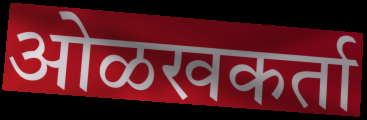
ओळखकर्ता